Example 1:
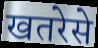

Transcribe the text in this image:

खतरेसे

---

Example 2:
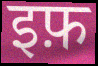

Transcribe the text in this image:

इफ़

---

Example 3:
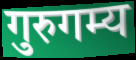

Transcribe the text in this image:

गुरुगम्य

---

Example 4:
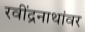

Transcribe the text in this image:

रवींद्रनाथांवर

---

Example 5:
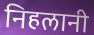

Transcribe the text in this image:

निहलानी